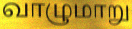
வாழுமாறு